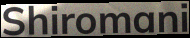
Shiromani